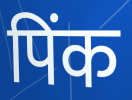
पिंक